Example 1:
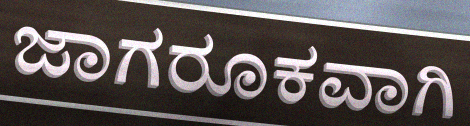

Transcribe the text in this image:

ಜಾಗರೂಕವಾಗಿ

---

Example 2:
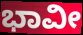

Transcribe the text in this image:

ಭಾವೀ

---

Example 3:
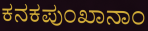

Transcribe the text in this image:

ಕನಕಪುಂಖಾನಾಂ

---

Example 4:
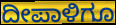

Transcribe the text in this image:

ದೀಪಾಳಿಗೂ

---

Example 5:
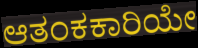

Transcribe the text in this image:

ಆತಂಕಕಾರಿಯೇ